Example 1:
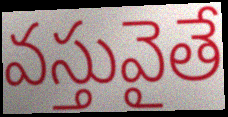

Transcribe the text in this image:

వస్తువైతే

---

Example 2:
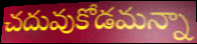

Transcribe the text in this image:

చదువుకోడమన్నా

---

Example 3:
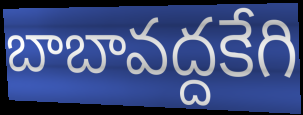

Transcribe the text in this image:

బాబావద్దకేగి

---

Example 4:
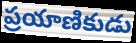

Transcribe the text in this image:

ప్రయాణికుడు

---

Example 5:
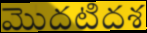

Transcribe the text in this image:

మొదటిదశ